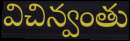
విచిన్వంతు